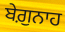
ਬੇਗ਼ੁਨਾਹ